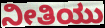
ನೀತಿಯು